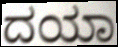
ದಯಾ